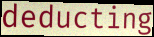
deducting